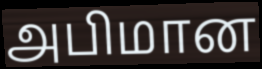
அபிமான